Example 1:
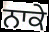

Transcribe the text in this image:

ਨਾਕੇ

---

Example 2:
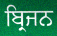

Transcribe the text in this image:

ਬ੍ਰਿਜਨ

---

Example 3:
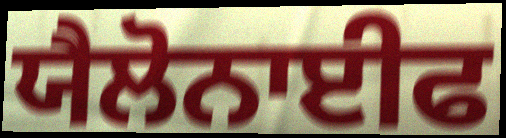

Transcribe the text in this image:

ਯੈਲੋਨਾਈਫ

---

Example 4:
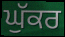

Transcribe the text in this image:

ਘੁੱਕਰ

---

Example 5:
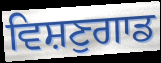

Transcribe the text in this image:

ਵਿਸ਼ਣੁਗਾਡ